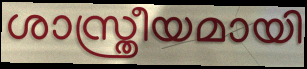
ശാസ്ത്രീയമായി